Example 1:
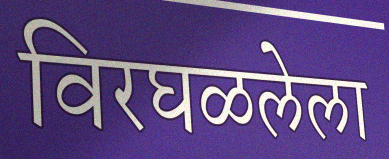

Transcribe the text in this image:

विरघळलेला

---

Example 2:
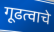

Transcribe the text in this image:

गूढत्वाचे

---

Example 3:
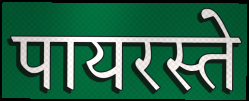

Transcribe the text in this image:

पायरस्ते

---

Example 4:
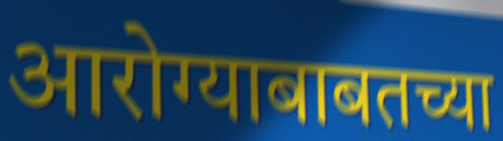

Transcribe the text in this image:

आरोग्याबाबतच्या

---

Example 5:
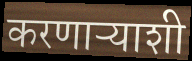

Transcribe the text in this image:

करणाऱ्याशी